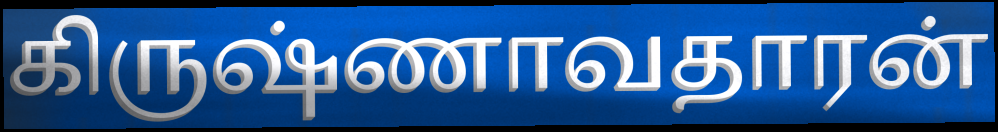
கிருஷ்ணாவதாரன்